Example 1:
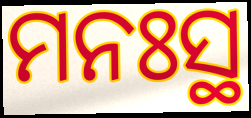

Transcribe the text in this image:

ମନଃସ୍ଥ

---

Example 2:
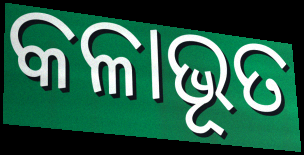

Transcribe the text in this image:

କଳାଭୂତ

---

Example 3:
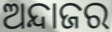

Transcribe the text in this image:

ଅନ୍ଦାଜର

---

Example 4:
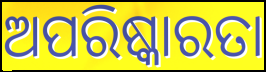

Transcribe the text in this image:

ଅପରିଷ୍କାରତା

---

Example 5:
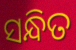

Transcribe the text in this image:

ସନ୍ଧିତ